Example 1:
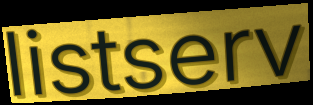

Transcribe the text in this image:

listserv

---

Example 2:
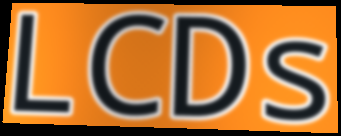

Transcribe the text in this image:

LCDs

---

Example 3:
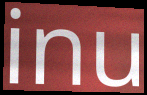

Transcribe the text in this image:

inu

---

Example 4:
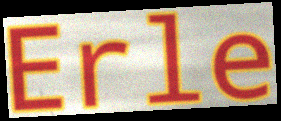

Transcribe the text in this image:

Erle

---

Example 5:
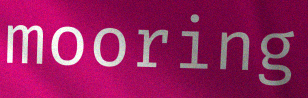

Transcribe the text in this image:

mooring